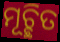
ମୂଚ୍ଛିତ